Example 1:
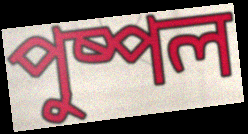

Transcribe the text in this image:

পুষ্পল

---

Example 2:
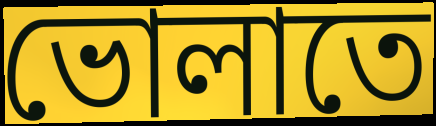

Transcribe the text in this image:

ভোলাতে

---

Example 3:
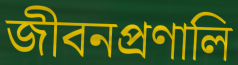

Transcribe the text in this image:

জীবনপ্রণালি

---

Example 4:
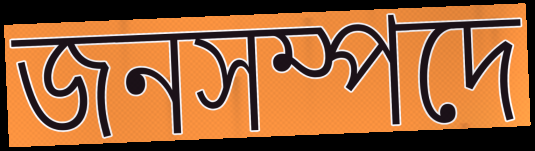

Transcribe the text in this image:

জনসম্পদে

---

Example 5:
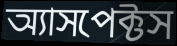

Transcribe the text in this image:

অ্যাসপেক্টস